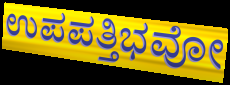
ಉಪಪತ್ತಿಭವೋ